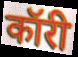
कॉरी